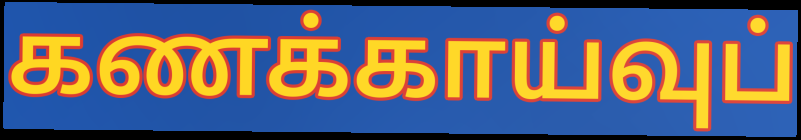
கணக்காய்வுப்